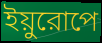
ইয়ুরোপে